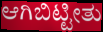
ಆಗಿಬಿಟ್ಟೀತು